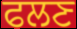
ਫਲਣ